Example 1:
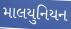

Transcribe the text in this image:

માલયુનિયન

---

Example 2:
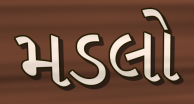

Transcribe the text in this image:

મડલો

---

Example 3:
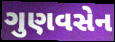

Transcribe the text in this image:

ગુણવસેન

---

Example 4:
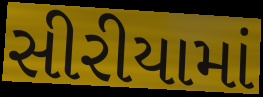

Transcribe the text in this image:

સીરીયામાં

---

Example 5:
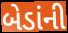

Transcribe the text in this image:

બેડાંની